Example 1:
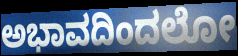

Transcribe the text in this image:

ಅಭಾವದಿಂದಲೋ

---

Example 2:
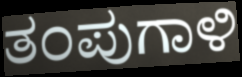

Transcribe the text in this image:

ತಂಪುಗಾಳಿ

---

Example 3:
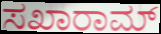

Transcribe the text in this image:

ಸಖಾರಾಮ್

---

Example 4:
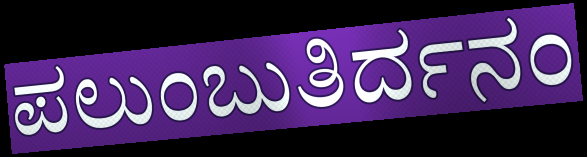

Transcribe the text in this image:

ಪಲುಂಬುತಿರ್ದನಂ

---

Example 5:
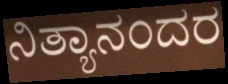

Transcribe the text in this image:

ನಿತ್ಯಾನಂದರ